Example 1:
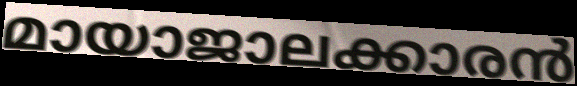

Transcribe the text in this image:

മായാജാലക്കാരൻ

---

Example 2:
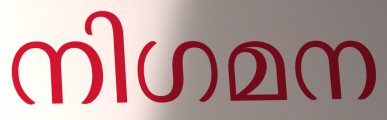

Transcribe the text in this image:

നിഗമന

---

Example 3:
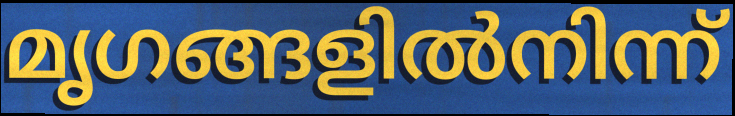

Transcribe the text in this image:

മൃഗങ്ങളിൽനിന്ന്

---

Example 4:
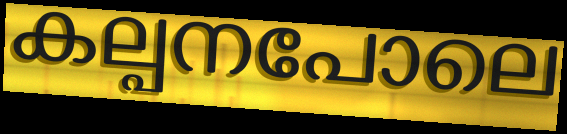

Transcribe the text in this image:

കല്പനപോലെ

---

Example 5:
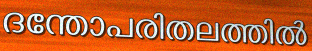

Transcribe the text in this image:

ദന്തോപരിതലത്തിൽ